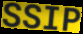
SSIP